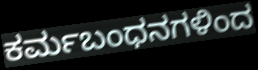
ಕರ್ಮಬಂಧನಗಳಿಂದ